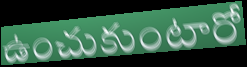
ఉంచుకుంటారో